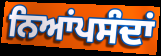
ਨਿਆਂਪਸੰਦਾਂ